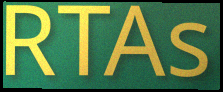
RTAs